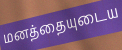
மனத்தையுடைய